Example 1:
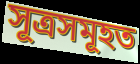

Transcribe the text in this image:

সূত্ৰসমূহত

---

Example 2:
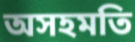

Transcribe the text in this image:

অসহমতি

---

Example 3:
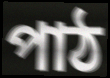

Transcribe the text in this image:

পাঠ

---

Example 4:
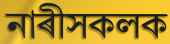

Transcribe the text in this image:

নাৰীসকলক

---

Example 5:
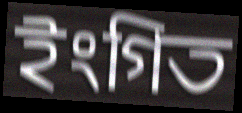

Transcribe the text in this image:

ইংগিত